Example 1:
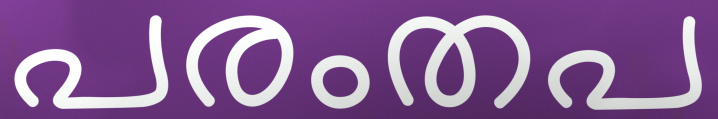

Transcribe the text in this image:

പരംതപ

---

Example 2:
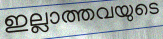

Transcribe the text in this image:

ഇല്ലാത്തവയുടെ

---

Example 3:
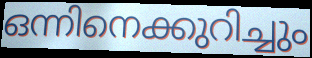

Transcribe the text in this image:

ഒന്നിനെക്കുറിച്ചും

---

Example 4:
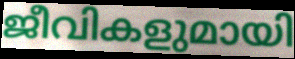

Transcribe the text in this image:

ജീവികളുമായി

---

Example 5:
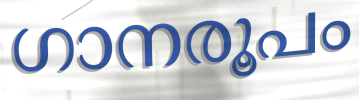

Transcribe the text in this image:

ഗാനരൂപം